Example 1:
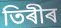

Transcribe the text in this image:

তিৰীৰ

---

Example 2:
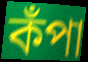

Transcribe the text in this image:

কঁপা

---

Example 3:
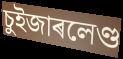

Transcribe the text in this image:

চুইজাৰলেণ্ড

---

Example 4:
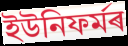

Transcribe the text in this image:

ইউনিফৰ্মৰ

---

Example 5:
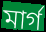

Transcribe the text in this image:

মাৰ্গ